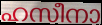
ഹസീനാ